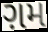
ગ઼મ